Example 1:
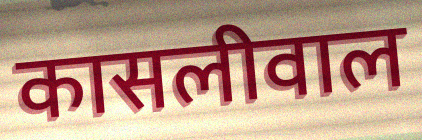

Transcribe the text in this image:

कासलीवाल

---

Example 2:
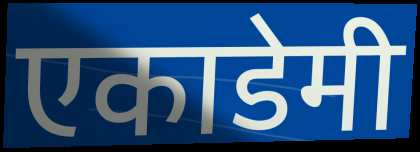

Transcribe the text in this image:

एकाडेमी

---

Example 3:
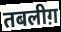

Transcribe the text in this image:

तबलीग़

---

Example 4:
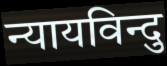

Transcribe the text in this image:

न्यायविन्दु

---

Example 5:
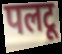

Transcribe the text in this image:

पलटू